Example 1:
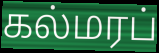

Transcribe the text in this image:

கல்மரப்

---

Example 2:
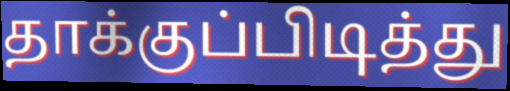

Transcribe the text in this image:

தாக்குப்பிடித்து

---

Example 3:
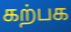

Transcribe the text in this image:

கற்பக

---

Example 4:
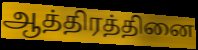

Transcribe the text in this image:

ஆத்திரத்தினை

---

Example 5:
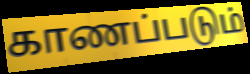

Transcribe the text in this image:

காணப்படும்